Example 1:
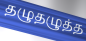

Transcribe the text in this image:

தழுதழுத்த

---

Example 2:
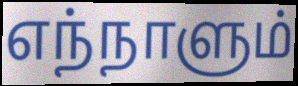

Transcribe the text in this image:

எந்நாளும்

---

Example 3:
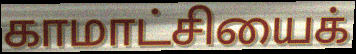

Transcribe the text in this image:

காமாட்சியைக்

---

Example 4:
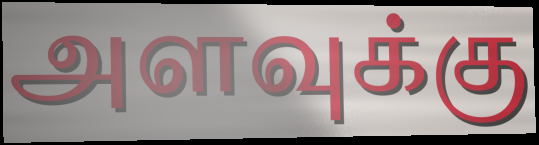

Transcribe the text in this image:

அளவுக்கு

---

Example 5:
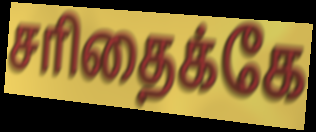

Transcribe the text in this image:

சரிதைக்கே